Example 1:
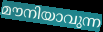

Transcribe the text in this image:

മൗനിയാവുന്ന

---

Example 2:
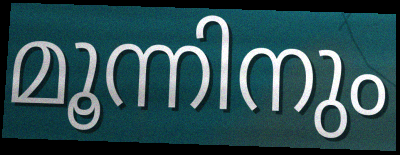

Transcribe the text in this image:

മൂന്നിനും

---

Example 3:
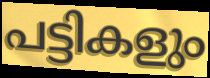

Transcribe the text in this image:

പട്ടികളും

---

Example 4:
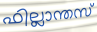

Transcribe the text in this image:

ഫില്ലാന്തസ്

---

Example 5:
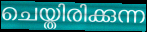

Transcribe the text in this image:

ചെയ്തിരിക്കുന്ന